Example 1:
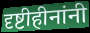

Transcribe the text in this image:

दृष्टीहीनांनी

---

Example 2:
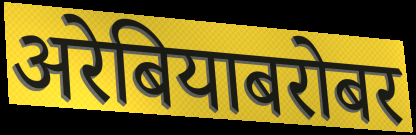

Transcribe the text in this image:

अरेबियाबरोबर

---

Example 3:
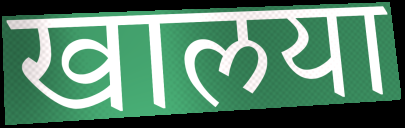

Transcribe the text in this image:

खालया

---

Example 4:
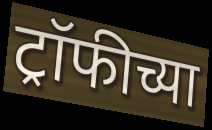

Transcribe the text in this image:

ट्रॉफीच्या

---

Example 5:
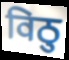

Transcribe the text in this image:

विठु